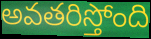
అవతరిస్తోంది